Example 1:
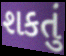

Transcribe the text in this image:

શકતું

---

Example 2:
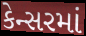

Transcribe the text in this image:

કેન્સરમાં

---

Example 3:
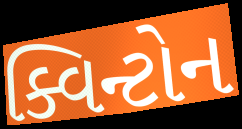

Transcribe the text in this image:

ક્વિન્ટોન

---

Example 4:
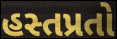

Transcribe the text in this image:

હસ્તપ્રતો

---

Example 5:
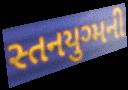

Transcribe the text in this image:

સ્તનયુગ્મની